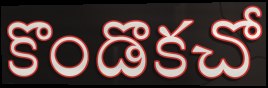
కొండొకచో